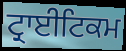
ਟ੍ਰਾਈਟਿਕਮ